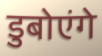
डुबोएंगे